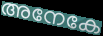
അനേകേ